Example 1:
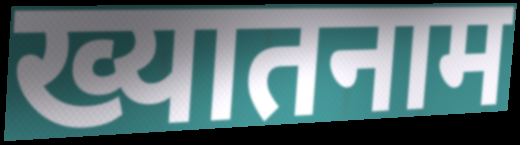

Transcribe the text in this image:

ख्यातनाम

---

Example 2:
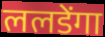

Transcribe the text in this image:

ललडेंगा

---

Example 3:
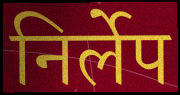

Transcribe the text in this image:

निर्लेप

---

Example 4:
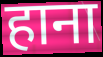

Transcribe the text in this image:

हाना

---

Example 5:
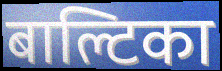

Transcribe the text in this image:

बाल्टिका